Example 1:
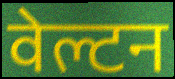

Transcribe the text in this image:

वेल्टन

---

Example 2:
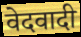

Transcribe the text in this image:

वेदवादी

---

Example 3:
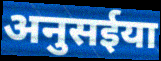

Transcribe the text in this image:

अनुसईया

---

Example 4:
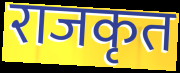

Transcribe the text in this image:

राजकृत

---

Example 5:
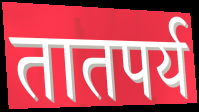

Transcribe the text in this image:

तातपर्य